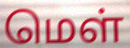
மெள்